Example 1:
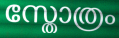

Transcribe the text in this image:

സ്തോത്രം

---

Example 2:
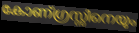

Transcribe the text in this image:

കോണ്ഗ്രസ്സിനെയും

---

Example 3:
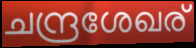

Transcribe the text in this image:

ചന്ദ്രശേഖര്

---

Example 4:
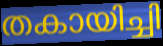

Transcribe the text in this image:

തകായിച്ചി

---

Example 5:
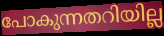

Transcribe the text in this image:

പോകുന്നതറിയില്ല